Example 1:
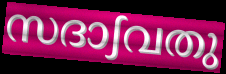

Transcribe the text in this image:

സദാഽവതു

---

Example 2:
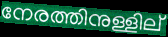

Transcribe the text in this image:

നേരത്തിനുള്ളില്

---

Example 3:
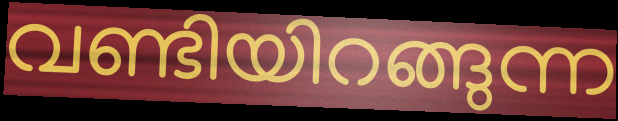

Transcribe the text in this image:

വണ്ടിയിറങ്ങുന്ന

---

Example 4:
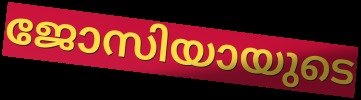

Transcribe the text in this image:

ജോസിയായുടെ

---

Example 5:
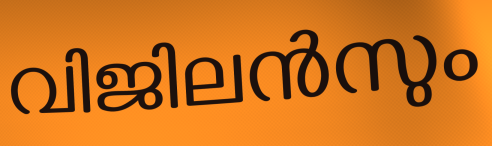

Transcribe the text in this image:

വിജിലൻസും